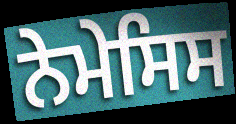
ਨੇਮੇਸਿਸ